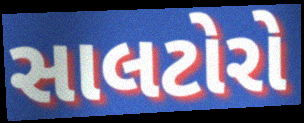
સાલટોરો